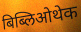
बिब्लिओथेक